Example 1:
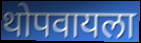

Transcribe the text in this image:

थोपवायला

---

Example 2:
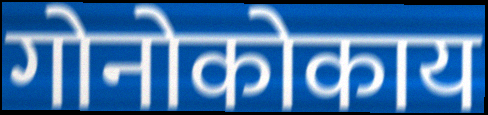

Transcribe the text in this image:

गोनोकोकाय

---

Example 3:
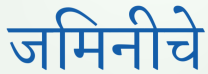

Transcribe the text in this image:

जमिनीचे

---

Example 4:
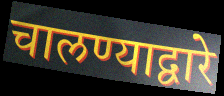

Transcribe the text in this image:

चालण्याद्वारे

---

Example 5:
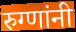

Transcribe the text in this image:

रुग्णांनी